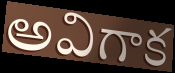
అవిగాక